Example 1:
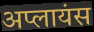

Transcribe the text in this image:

अप्लायंस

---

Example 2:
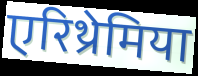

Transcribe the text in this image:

एरिथ्रेमिया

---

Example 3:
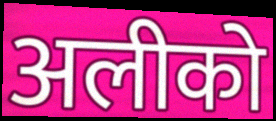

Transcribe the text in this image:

अलीको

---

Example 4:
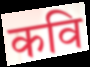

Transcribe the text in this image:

कवि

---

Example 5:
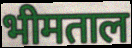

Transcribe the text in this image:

भीमताल